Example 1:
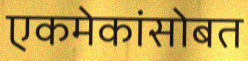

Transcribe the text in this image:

एकमेकांसोबत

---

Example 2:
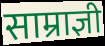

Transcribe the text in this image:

साम्राज्ञी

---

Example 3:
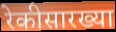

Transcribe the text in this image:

रेकीसारख्या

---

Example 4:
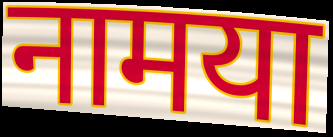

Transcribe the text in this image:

नामया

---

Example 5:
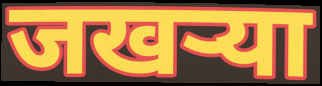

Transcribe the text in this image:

जखऱ्या